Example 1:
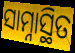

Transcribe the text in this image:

ସାମ୍ନାସ୍ଥିତ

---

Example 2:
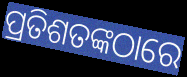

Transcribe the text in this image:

ପ୍ରତିଶତଙ୍କଠାରେ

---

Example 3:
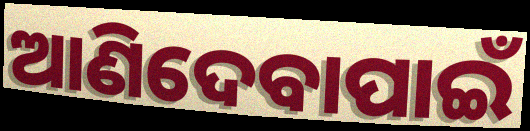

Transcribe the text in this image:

ଆଣିଦେବାପାଇଁ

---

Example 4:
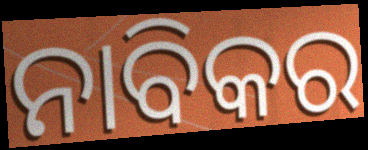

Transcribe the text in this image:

ନାବିକର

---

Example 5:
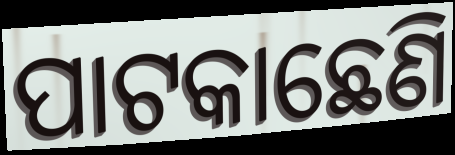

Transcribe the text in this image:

ପାଟକାଛେଣି